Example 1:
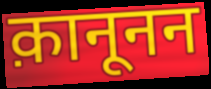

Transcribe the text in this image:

क़ानूनन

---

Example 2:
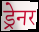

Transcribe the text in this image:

ड्रेनर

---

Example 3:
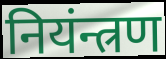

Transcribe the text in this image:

नियंन्त्रण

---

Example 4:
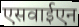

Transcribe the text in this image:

एसवाईएन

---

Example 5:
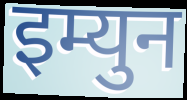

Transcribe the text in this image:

इम्युन